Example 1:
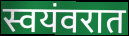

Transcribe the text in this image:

स्वयंवरात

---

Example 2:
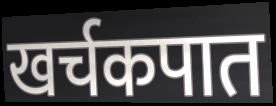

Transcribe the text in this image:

खर्चकपात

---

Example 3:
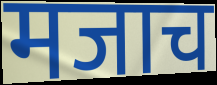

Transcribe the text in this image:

मजाच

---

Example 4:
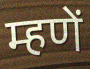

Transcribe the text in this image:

म्हणें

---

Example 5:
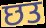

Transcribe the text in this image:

छउ